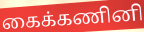
கைக்கணினி